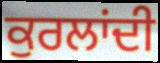
ਕੁਰਲਾਂਦੀ